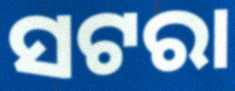
ସଟରା